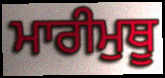
ਮਾਰੀਮੁਥੂ